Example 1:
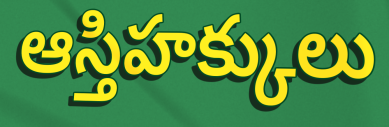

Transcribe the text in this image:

ఆస్తిహక్కులు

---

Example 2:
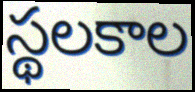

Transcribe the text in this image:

స్థలకాల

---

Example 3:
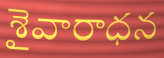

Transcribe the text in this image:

శైవారాధన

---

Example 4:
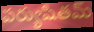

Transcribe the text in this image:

పర్యుషితమ్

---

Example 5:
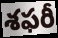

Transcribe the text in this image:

శఫరీ